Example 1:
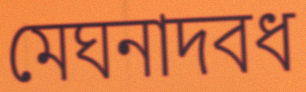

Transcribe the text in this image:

মেঘনাদবধ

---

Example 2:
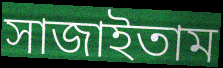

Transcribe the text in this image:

সাজাইতাম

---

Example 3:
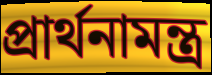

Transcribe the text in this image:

প্রার্থনামন্ত্র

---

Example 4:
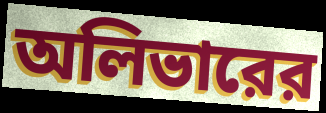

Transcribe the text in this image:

অলিভারের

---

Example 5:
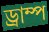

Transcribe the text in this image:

ড্রাম্প